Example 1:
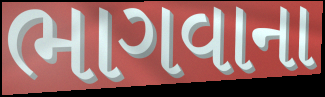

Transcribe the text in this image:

ભાગવાના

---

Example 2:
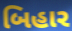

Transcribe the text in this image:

બિહાર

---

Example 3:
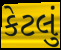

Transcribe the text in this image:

કેટલું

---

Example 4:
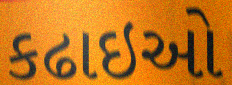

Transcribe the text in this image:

કઢાઇઓ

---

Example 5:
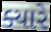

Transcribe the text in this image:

ક્યારે